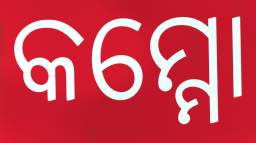
କମ୍ମୋ